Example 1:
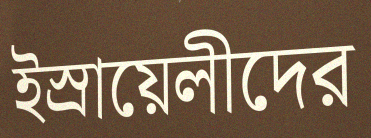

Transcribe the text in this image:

ইস্রায়েলীদের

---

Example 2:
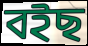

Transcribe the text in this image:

বইছ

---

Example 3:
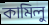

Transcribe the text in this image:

কামিলু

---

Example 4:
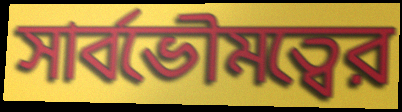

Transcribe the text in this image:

সার্বভৌমত্বের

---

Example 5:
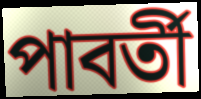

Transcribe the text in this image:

পাবর্তী